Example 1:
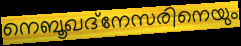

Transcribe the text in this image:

നെബൂഖദ്നേസരിനെയും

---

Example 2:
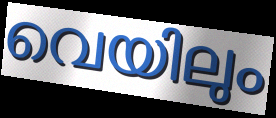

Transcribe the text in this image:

വെയിലും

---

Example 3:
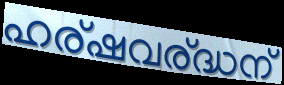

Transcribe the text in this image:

ഹര്ഷവര്ദ്ധന്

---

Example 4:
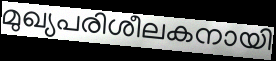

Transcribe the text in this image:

മുഖ്യപരിശീലകനായി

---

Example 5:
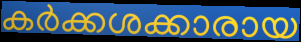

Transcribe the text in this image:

കർക്കശക്കാരായ